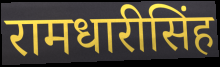
रामधारीसिंह